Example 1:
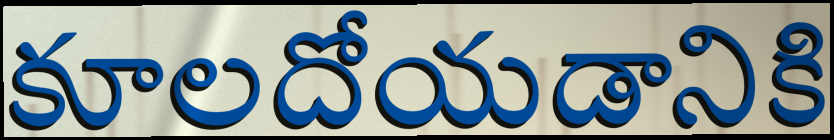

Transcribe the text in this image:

కూలదోయడానికి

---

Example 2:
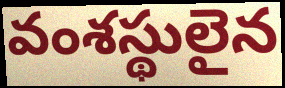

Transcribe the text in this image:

వంశస్థులైన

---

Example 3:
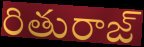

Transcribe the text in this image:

రితురాజ్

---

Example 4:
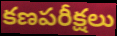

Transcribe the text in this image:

కణపరీక్షలు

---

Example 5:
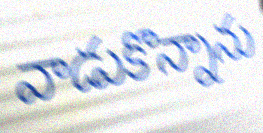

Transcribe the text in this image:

వాడుకొన్నాను